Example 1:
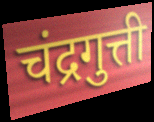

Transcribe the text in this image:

चंद्रगुत्ती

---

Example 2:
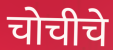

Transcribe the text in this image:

चोचीचे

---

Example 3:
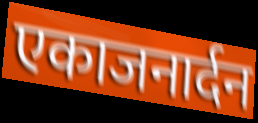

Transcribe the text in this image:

एकाजनार्दन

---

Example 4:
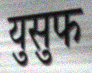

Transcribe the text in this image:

युसुफ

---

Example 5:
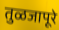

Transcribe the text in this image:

तुळजापूरे